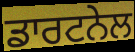
ਡਾਰਟਨੇਲ